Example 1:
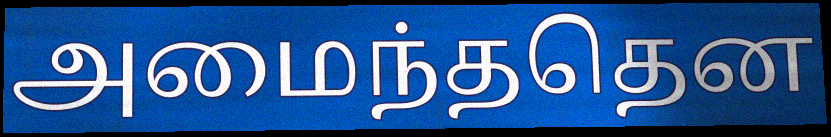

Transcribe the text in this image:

அமைந்ததென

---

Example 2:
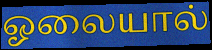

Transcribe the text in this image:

ஓலையால்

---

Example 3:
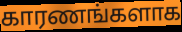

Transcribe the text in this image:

காரணங்களாக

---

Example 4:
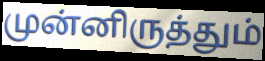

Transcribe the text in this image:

முன்னிருத்தும்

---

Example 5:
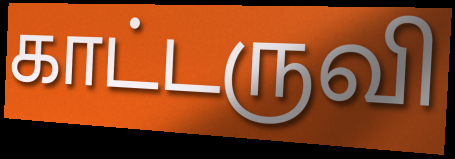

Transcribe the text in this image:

காட்டருவி